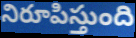
నిరూపిస్తుంది